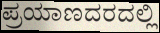
ಪ್ರಯಾಣದರದಲ್ಲಿ